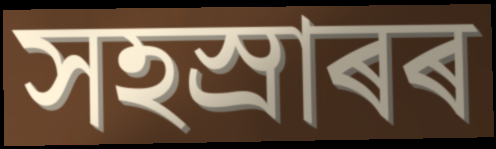
সহস্ৰাৰৰ